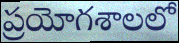
ప్రయోగశాలలో